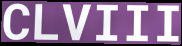
CLVIII